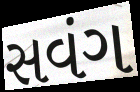
સવંગ